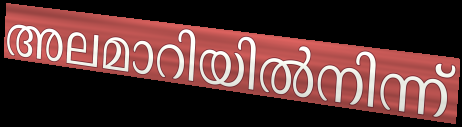
അലമാറിയിൽനിന്ന്